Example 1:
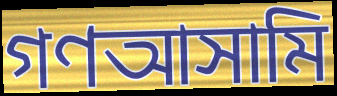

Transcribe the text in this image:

গণআসামি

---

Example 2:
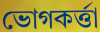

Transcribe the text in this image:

ভোগকর্ত্তা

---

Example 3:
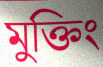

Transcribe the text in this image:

মুক্তিং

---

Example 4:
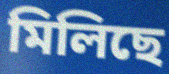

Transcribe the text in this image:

মিলিছে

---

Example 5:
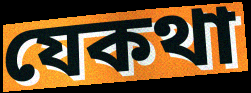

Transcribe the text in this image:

যেকথা